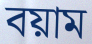
বয়াম